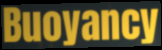
Buoyancy